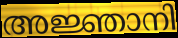
അജ്ഞാനി